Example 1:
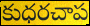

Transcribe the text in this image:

కుధరచాప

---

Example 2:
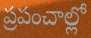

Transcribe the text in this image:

ప్రపంచాల్లో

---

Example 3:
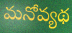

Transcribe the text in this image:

మనోవ్యథ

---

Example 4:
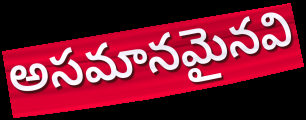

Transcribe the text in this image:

అసమానమైనవి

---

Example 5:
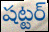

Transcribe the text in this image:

షట్టర్